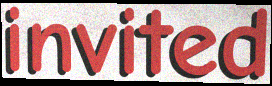
invited